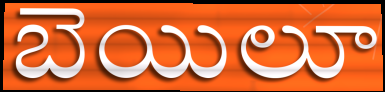
బెయిలూ